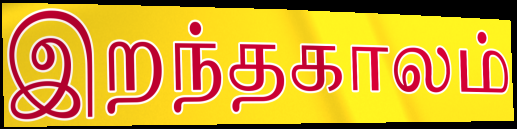
இறந்தகாலம்